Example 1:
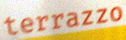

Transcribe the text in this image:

terrazzo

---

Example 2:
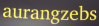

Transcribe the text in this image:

aurangzebs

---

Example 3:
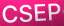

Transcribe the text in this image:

CSEP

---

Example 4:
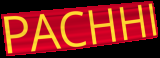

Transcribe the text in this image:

PACHHI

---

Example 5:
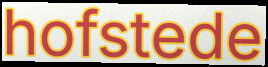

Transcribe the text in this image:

hofstede